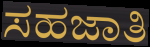
ಸಹಜಾತಿ